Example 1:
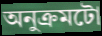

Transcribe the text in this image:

অনুক্ৰমটো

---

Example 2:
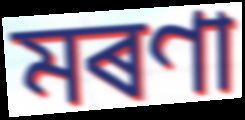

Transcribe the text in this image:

মৰণা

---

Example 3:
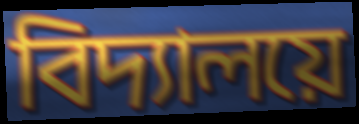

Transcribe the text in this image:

বিদ্যালয়ে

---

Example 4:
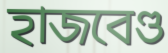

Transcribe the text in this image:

হাজবেণ্ড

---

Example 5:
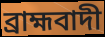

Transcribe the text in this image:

ব্ৰাহ্মবাদী